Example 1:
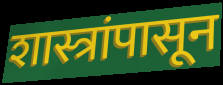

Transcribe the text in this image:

शास्त्रांपासून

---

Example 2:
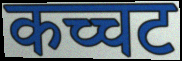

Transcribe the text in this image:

कच्चट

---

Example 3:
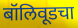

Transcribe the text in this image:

बॉलिवूडचा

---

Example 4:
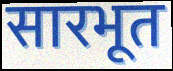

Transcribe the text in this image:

सारभूत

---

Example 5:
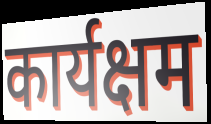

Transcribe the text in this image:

कार्यक्षम